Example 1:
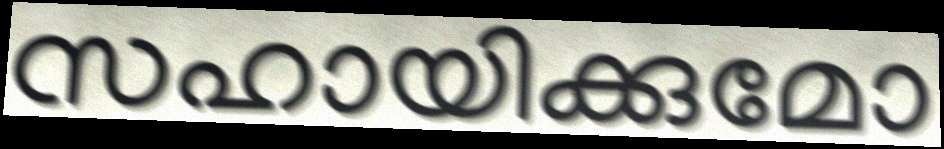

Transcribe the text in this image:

സഹായിക്കുമോ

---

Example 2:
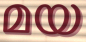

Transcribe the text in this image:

മയ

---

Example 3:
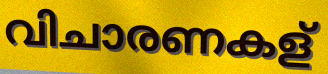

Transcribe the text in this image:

വിചാരണകള്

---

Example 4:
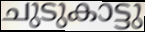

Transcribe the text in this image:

ചുടുകാട്ടു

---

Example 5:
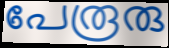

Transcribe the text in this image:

പേരൂരു